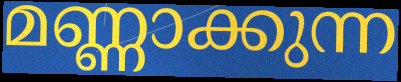
മണ്ണാക്കുന്ന